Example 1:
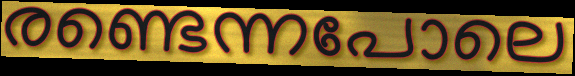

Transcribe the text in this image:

രണ്ടെന്നപോലെ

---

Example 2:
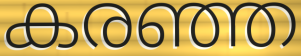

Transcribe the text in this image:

കരഞ്ഞ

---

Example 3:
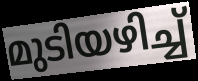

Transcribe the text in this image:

മുടിയഴിച്ച്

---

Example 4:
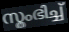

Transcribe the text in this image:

സ്തംഭിച്ച്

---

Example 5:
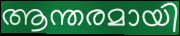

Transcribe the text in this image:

ആന്തരമായി